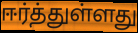
ஈர்த்துள்ளது